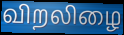
விறலிழை